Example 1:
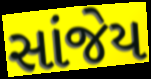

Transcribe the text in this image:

સાંજેય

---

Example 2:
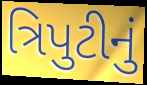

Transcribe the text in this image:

ત્રિપુટીનું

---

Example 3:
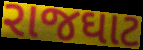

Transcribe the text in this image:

રાજઘાટ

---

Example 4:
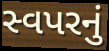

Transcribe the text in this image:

સ્વપરનું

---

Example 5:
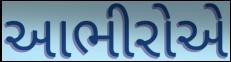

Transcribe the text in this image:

આભીરોએ